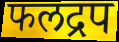
फलद्रप